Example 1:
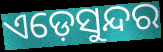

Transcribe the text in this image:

ଏଡ଼େସୁନ୍ଦର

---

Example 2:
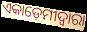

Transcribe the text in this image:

ଏକାଡ଼େମୀଦ୍ୱାରା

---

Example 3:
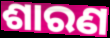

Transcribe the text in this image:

ଶାରଣ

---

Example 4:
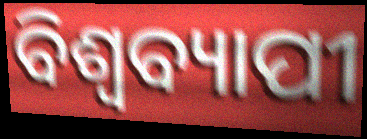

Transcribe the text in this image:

ବିଶ୍ୱବ୍ୟାପୀ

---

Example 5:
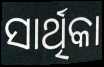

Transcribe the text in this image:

ସାର୍ଥିକା